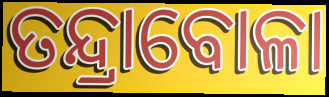
ତନ୍ଦ୍ରାବୋଳା